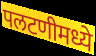
पलटणीमध्ये